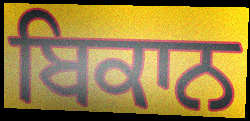
ਬਿਕਾਨ